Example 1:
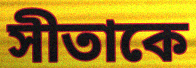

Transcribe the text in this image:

সীতাকে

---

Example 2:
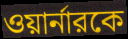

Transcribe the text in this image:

ওয়ার্নারকে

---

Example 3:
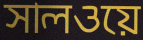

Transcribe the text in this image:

সালওয়ে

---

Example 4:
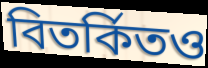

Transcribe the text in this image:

বিতর্কিতও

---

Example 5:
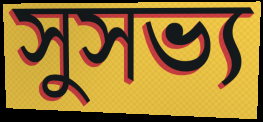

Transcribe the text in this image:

সুসভ্য